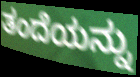
ತಂದೆಯನ್ನು